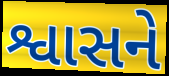
શ્વાસને